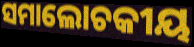
ସମାଲୋଚକୀୟ